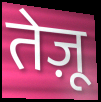
तेज़ू